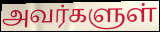
அவர்களுள்